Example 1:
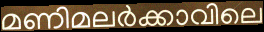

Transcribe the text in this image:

മണിമലർക്കാവിലെ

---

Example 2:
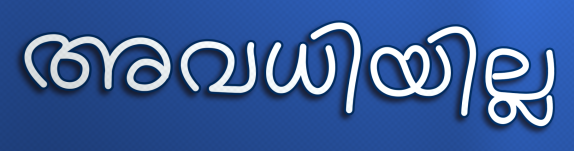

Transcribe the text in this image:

അവധിയില്ല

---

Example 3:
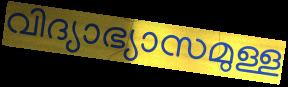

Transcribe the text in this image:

വിദ്യാഭ്യാസമുള്ള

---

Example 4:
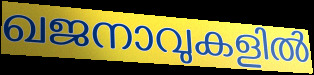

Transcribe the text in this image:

ഖജനാവുകളിൽ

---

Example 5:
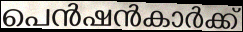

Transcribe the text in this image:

പെൻഷൻകാർക്ക്